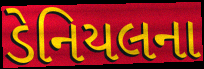
ડેનિયલના